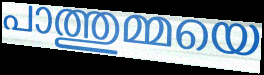
പാത്തുമ്മയെ